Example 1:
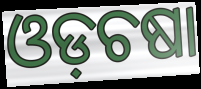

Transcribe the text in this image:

ଓଡ଼ଚଷା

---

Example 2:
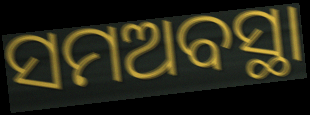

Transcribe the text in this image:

ସମଅବସ୍ଥା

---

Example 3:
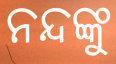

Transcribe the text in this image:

ନନ୍ଦଙ୍କୁ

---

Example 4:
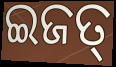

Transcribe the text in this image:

ଇଜତ୍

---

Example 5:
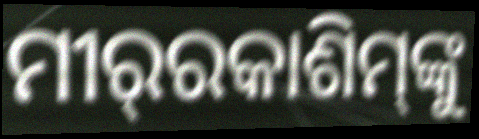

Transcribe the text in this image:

ମୀର୍‌ରକାଶିମ୍‌ଙ୍କୁ